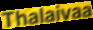
Thalaivaa